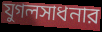
যুগলসাধনার